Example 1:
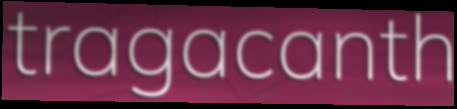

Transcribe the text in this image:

tragacanth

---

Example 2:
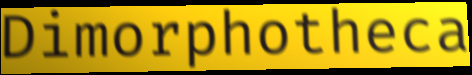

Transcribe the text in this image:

Dimorphotheca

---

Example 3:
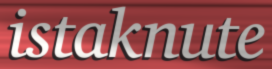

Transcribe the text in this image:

istaknute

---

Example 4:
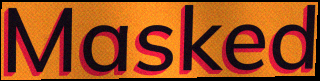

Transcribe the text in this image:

Masked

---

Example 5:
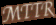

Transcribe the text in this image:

MTTR